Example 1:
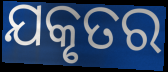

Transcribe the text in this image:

ଯକୃତର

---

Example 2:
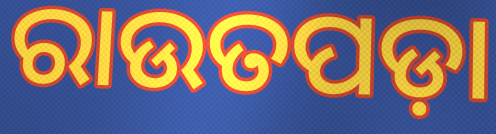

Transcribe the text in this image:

ରାଉତପଡ଼ା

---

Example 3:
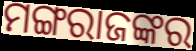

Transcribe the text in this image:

ମଙ୍ଗରାଜଙ୍କର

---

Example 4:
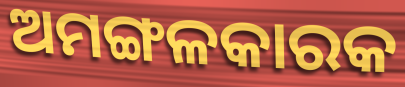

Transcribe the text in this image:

ଅମଙ୍ଗଳକାରକ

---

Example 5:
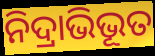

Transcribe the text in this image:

ନିଦ୍ରାଭିଭୂତ